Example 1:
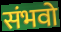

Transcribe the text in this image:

संभवो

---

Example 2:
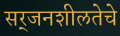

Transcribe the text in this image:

सर्जनशीलतेचे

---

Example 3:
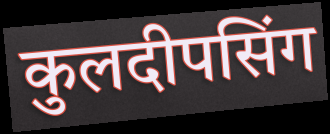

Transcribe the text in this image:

कुलदीपसिंग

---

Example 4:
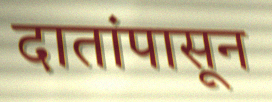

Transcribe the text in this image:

दातांपासून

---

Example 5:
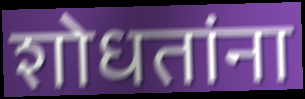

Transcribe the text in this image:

शोधतांना